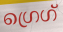
ഗ്രെഗ്